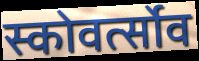
स्कोवर्त्सोव